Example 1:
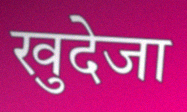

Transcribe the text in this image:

खुदेजा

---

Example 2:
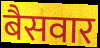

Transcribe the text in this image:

बैसवार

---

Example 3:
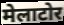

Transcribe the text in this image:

मेलाटोर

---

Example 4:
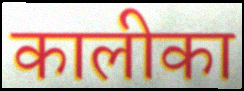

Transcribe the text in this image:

कालीका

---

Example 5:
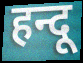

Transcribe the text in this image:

हन्दू